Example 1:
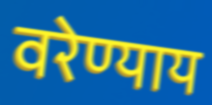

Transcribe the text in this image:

वरेण्याय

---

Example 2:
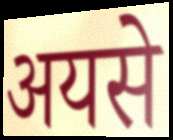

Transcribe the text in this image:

अयसे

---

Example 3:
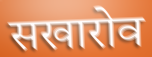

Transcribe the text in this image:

सखारोव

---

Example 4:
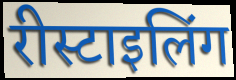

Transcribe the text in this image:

रीस्टाइलिंग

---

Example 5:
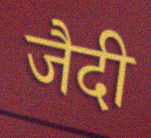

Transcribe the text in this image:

जैदी